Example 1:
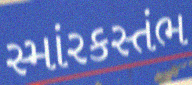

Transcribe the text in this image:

સ્માંરકસ્તંભ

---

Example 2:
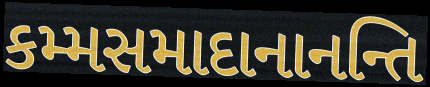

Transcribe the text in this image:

કમ્મસમાદાનાનન્તિ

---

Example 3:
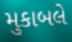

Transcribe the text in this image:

મુકાબલે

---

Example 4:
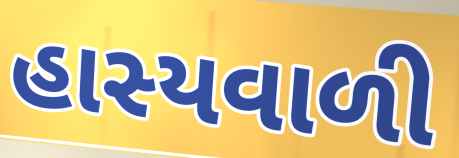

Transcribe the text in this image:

હાસ્યવાળી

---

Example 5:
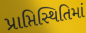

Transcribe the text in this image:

પ્રાપ્તિસ્થિતિમાં